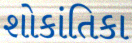
શોકાંતિકા